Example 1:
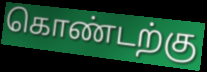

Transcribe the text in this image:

கொண்டற்கு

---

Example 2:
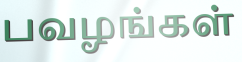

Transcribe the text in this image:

பவழங்கள்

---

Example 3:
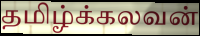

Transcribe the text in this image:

தமிழ்க்கலவன்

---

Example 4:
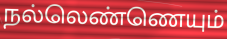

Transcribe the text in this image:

நல்லெண்ணெயும்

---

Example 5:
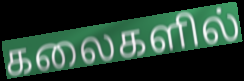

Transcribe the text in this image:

கலைகளில்